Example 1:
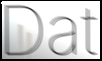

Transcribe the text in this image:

Dat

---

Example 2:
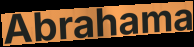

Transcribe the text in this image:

Abrahama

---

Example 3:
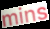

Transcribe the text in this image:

mins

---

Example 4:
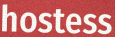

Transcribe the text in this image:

hostess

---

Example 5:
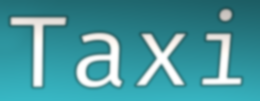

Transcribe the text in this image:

Taxi